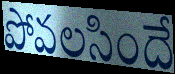
పోవలసిందే